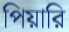
পিয়ারি